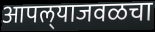
आपल्याजवळचा